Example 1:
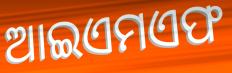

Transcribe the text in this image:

ଆଇଏମଏଫ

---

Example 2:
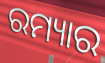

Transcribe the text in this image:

ରମ୍ୟାର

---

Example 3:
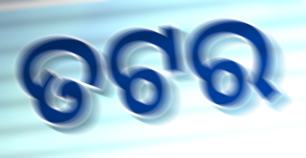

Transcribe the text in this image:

ତଟର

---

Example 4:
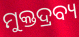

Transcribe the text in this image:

ମୁକ୍ତଦ୍ରବ୍ୟ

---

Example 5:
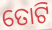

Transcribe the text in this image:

ତୋଟି